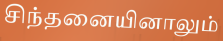
சிந்தனையினாலும்